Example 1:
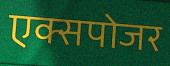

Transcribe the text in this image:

एक्सपोजर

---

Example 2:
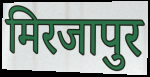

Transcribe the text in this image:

मिरजापुर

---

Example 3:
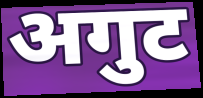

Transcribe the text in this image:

अगुट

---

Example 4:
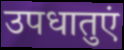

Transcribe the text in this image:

उपधातुएं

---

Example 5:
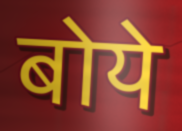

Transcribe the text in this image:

बोये